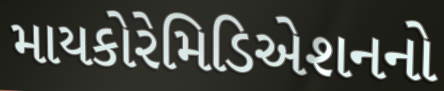
માયકોરેમિડિએશનનો